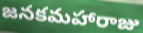
జనకమహారాజు